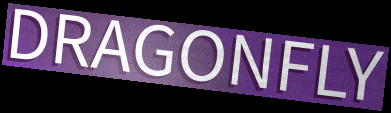
DRAGONFLY